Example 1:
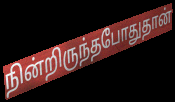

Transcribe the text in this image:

நின்றிருந்தபோதுதான்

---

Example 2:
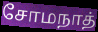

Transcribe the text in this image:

சோமநாத்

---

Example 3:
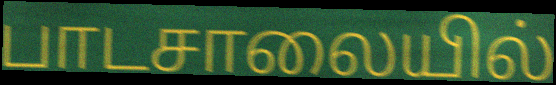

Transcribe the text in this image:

பாடசாலையில்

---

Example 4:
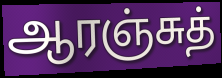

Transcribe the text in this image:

ஆரஞ்சுத்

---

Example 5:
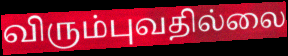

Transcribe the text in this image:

விரும்புவதில்லை